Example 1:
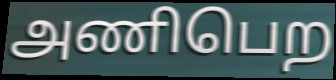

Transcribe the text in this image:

அணிபெற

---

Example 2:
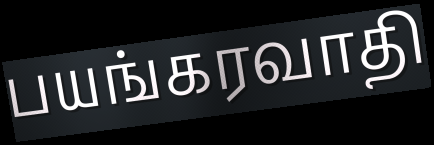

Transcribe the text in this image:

பயங்கரவாதி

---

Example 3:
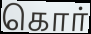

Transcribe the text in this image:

கொர்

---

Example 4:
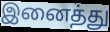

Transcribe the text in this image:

இனைத்து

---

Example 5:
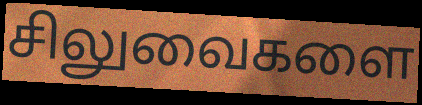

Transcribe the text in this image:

சிலுவைகளை